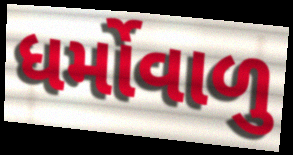
ધર્મોવાળુ